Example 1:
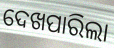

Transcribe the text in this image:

ଦେଖପାରିଲା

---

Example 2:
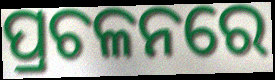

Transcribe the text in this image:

ପ୍ରଚଳନରେ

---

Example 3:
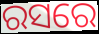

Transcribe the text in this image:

ରସରେ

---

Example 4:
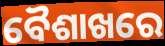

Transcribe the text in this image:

ବୈଶାଖରେ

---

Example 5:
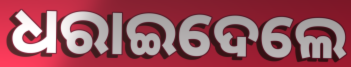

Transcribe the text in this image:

ଧରାଇଦେଲେ